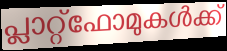
പ്ലാറ്റ്ഫോമുകൾക്ക്